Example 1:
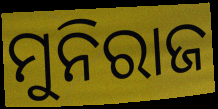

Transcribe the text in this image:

ମୁନିରାଜ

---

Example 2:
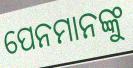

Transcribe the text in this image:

ପେନମାନଙ୍କୁ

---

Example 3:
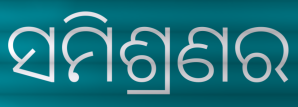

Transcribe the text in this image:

ସମିଶ୍ରଣର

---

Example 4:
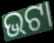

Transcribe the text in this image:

ଭଟା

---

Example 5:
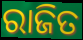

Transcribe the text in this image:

ରାଜିତ